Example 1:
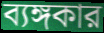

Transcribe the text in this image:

ব্যঙ্গকার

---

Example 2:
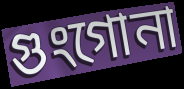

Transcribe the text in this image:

গুংগোনা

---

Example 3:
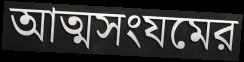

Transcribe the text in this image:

আত্মসংযমের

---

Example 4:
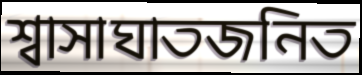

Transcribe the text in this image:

শ্বাসাঘাতজনিত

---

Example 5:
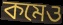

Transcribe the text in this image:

কমেও